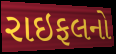
રાઇફલનો